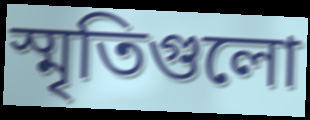
স্মৃতিগুলো